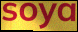
soya